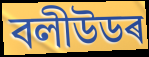
বলীউডৰ